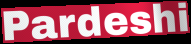
Pardeshi